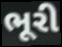
ભૂરી